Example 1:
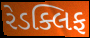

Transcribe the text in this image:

રેડક્લિફ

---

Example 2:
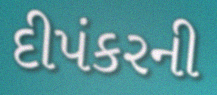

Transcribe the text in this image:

દીપંકરની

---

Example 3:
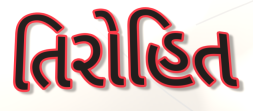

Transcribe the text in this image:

તિરોહિત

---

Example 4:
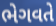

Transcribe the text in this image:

ભેગવતે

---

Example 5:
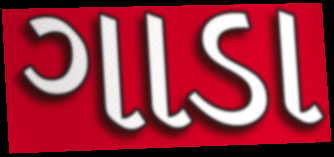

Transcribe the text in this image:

ગાડા